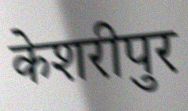
केशरीपुर